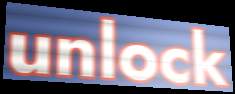
unlock